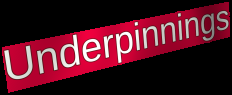
Underpinnings